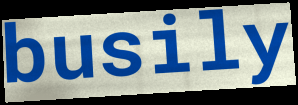
busily